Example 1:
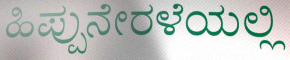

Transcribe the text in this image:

ಹಿಪ್ಪುನೇರಳೆಯಲ್ಲಿ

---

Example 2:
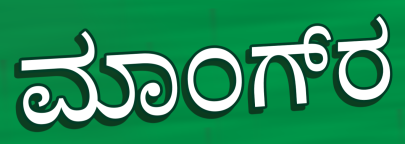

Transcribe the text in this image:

ಮಾಂಗ್‌ರ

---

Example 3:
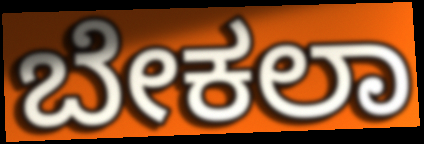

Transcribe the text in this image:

ಬೇಕಲಾ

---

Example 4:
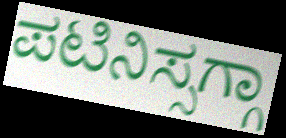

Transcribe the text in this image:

ಪಟಿನಿಸ್ಸಗ್ಗಾ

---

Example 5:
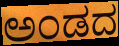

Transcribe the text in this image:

ಅಂಡದ